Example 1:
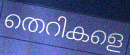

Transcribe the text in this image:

തെറികളെ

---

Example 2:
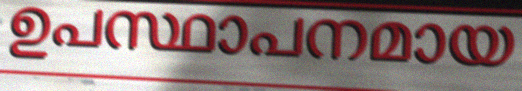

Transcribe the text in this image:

ഉപസ്ഥാപനമായ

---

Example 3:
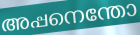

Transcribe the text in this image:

അപ്പനെന്തോ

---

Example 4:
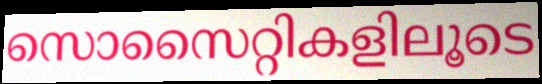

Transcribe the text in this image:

സൊസൈറ്റികളിലൂടെ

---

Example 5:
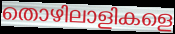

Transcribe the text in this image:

തൊഴിലാളികളെ